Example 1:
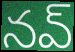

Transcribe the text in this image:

నవ్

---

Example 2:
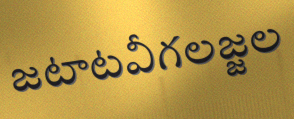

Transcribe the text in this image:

జటాటవీగలజ్జల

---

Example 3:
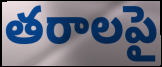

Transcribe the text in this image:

తరాలపై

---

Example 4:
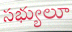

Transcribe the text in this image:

సభ్యులూ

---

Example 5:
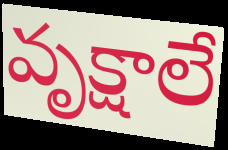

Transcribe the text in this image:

వృక్షాలే